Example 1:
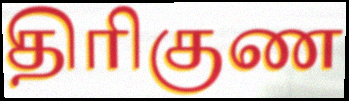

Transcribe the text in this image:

திரிகுண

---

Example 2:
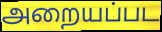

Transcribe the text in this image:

அறையப்பட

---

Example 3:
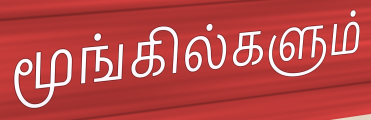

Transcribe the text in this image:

மூங்கில்களும்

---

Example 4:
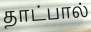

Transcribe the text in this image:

தாட்பால்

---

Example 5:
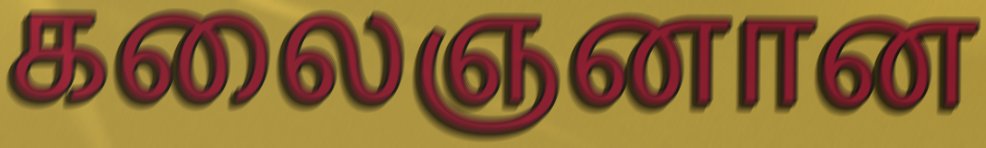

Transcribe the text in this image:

கலைஞனான